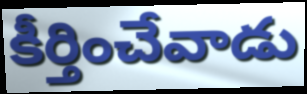
కీర్తించేవాడు